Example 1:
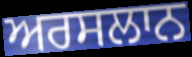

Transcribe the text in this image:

ਅਰਸਲਾਨ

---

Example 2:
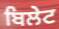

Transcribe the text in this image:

ਬਿਲੇਟ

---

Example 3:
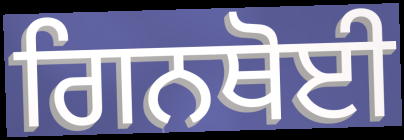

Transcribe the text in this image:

ਗਿਨਥੋਈ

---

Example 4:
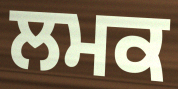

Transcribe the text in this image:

ਲਮਕ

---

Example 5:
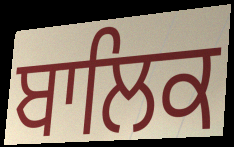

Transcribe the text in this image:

ਬਾਲਿਕ